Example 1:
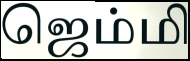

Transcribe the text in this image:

ஜெம்மி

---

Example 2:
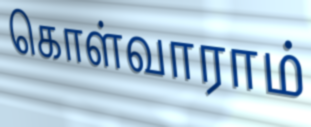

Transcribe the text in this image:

கொள்வாராம்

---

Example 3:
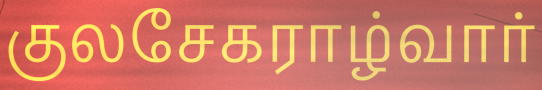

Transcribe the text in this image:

குலசேகராழ்வார்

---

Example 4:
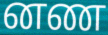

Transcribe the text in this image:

னண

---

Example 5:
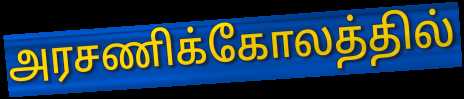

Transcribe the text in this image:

அரசணிக்கோலத்தில்